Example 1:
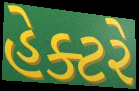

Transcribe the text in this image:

હેક્ટરે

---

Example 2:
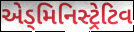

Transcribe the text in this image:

એડ્મિનિસ્ટ્રેટિવ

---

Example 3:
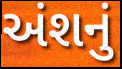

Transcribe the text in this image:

અંશનું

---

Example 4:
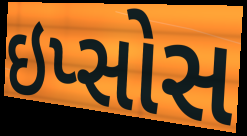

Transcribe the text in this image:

ઇપ્સોસ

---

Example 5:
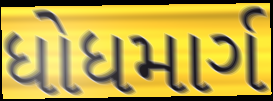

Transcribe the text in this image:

ધોધમાર્ગ